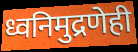
ध्वनिमुद्रणेही